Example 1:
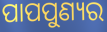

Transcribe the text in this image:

ପାପପୁଣ୍ୟର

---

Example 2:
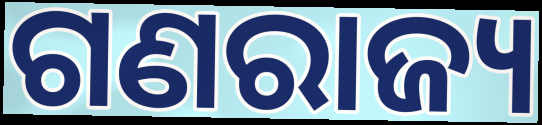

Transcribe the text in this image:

ଗଣରାଜ୍ୟ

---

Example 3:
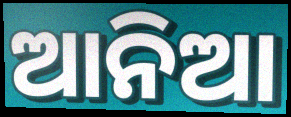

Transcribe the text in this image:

ଆନିଆ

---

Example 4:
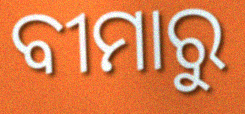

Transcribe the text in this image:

ବୀମାରୁ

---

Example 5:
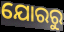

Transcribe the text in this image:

ଯୋରରୁ